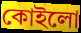
কোইলো